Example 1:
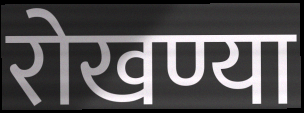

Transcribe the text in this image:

रोखण्या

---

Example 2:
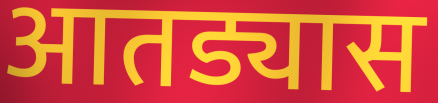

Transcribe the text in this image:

आतड्यास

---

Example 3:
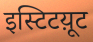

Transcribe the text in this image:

इस्टिटय़ूट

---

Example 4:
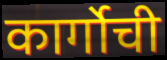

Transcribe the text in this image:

कार्गोची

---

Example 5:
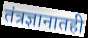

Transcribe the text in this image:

तंत्रज्ञानातही